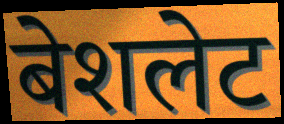
बेशलेट